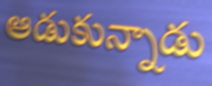
ఆడుకున్నాడు